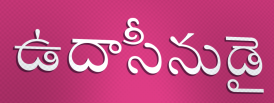
ఉదాసీనుడై